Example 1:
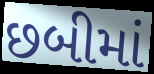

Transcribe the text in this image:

છબીમાં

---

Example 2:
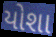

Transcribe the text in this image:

યોશા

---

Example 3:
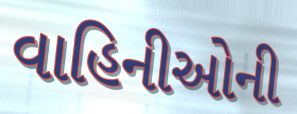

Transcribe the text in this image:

વાહિનીઓની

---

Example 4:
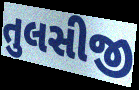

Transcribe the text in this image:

તુલસીજી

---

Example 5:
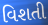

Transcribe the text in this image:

વિશતી